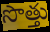
సొత్తు